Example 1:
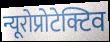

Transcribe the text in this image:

न्यूरोप्रोटेक्टिव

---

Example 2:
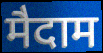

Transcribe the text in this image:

मैदाम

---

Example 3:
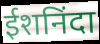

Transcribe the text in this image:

ईशनिंदा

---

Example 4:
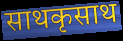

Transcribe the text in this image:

साथकृसाथ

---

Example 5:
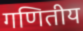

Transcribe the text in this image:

गणितीय